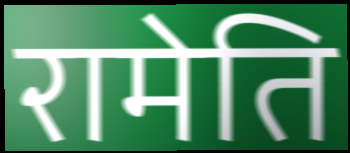
रामेति